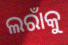
ଲରାଁକୁ